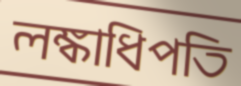
লঙ্কাধিপতি